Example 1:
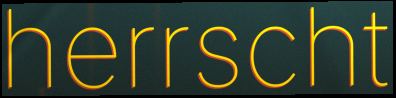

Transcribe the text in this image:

herrscht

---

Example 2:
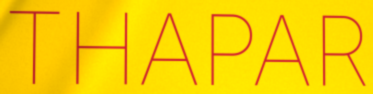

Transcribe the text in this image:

THAPAR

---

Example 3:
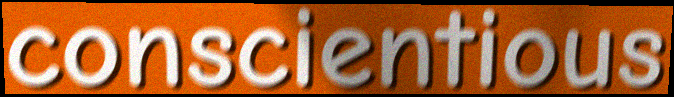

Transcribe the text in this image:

conscientious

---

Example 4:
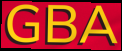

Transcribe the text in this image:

GBA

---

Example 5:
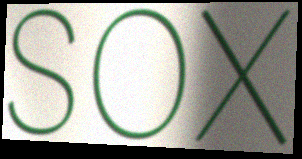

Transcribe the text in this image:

SOX